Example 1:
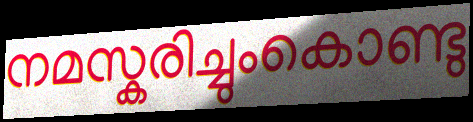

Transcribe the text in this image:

നമസ്കരിച്ചുംകൊണ്ടു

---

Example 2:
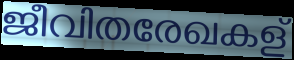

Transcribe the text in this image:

ജീവിതരേഖകള്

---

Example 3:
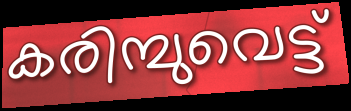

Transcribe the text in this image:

കരിമ്പുവെട്ട്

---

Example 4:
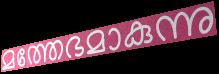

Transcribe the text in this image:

മത്തേഭമാകുന്നു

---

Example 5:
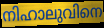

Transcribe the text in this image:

നിഹാലുവിനെ